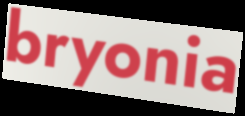
bryonia